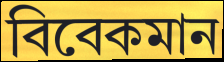
বিবেকমান